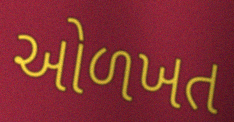
ઓળખત